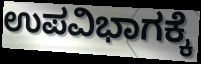
ಉಪವಿಭಾಗಕ್ಕೆ